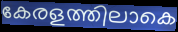
കേരളത്തിലാകെ